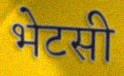
भेटसी